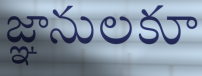
జ్ఞానులకూ